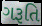
ગરૂતિ